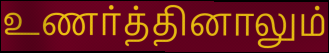
உணர்த்தினாலும்